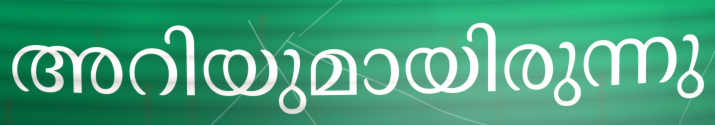
അറിയുമായിരുന്നു